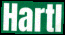
Hartl